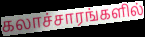
கலாச்சாரங்களில்